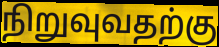
நிறுவுவதற்கு